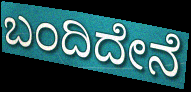
ಬಂದಿದೇನೆ